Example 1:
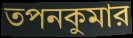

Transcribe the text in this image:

তপনকুমার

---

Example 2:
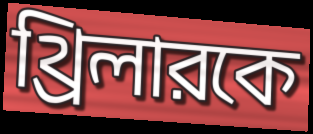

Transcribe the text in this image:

থ্রিলারকে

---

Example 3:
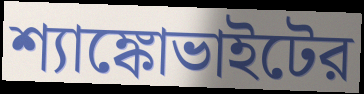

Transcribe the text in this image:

শ্যাঙ্কোভাইটের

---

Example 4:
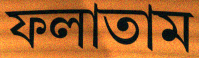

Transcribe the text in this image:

ফলাতাম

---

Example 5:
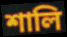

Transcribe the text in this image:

শালি